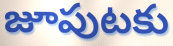
జూపుటకు